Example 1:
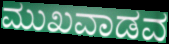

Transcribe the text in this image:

ಮುಖವಾಡವ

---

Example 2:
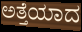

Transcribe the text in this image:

ಅತ್ತೆಯಾದ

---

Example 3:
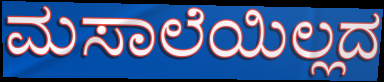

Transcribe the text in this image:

ಮಸಾಲೆಯಿಲ್ಲದ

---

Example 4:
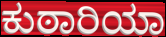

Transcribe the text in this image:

ಕುಠಾರಿಯಾ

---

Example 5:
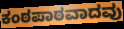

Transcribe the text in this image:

ಕಂಠಪಾಠವಾದವು